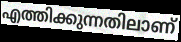
എത്തിക്കുന്നതിലാണ്